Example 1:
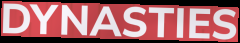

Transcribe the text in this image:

DYNASTIES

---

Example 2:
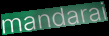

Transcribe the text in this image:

mandarai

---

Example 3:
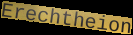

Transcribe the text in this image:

Erechtheion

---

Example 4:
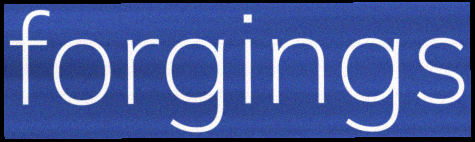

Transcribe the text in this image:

forgings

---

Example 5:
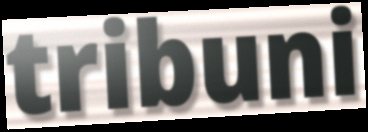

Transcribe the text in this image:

tribuni